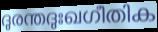
ദുരന്തദുഃഖഗീതിക